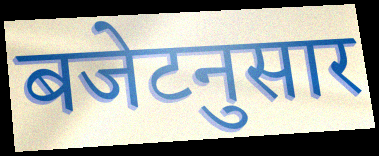
बजेटनुसार